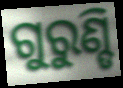
ଗୁରୁଣ୍ଡି